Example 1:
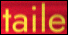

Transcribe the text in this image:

taile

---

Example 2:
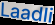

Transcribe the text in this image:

Laadli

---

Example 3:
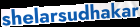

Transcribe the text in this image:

shelarsudhakar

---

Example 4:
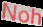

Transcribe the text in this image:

Noh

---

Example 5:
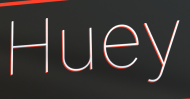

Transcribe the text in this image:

Huey